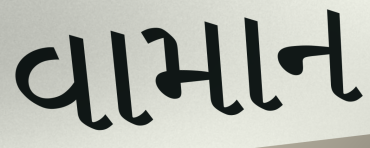
વામાન